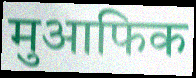
मुआफिक